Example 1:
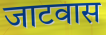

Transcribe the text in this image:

जाटवास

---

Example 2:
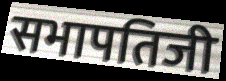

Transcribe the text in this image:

सभापतिजी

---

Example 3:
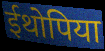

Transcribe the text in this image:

ईथोपिया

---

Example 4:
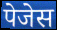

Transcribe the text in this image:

पेजेस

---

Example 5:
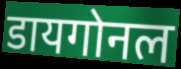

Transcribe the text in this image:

डायगोनल